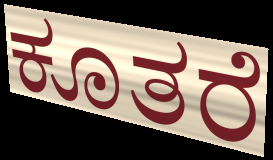
ಕೂತರೆ